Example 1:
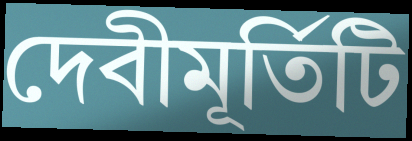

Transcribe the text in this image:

দেবীমূর্তিটি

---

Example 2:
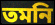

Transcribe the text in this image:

তমনি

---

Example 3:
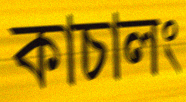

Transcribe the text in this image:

কাচালং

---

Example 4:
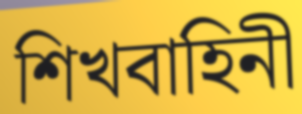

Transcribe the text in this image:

শিখবাহিনী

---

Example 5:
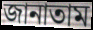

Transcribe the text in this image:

জানাতাম